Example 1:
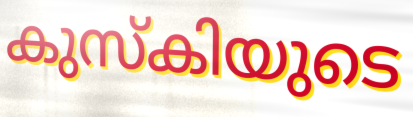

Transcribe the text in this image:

കുസ്കിയുടെ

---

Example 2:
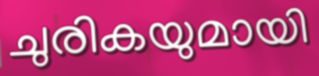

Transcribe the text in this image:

ചുരികയുമായി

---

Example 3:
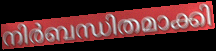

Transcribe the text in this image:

നിർബന്ധിതമാക്കി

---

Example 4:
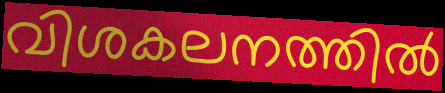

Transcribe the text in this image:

വിശകലനത്തിൽ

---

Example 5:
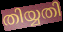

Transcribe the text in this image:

തിയ്യതി